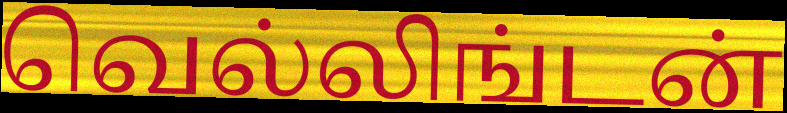
வெல்லிங்டன்